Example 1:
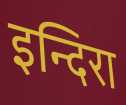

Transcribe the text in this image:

इन्दिरा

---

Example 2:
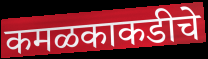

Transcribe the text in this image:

कमळकाकडीचे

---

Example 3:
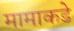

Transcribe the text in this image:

मामाकडे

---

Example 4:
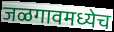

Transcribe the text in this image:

जळगावमध्येच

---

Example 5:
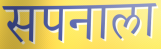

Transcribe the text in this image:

सपनाला